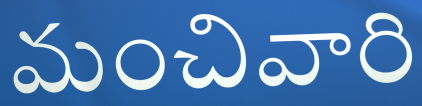
మంచివారి